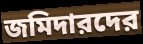
জমিদারদের